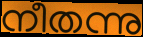
നീതന്നു